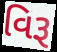
વિરૂ